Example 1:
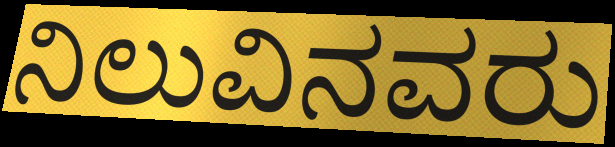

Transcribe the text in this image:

ನಿಲುವಿನವರು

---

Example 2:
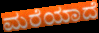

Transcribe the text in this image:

ಮರೆಯಾದೆ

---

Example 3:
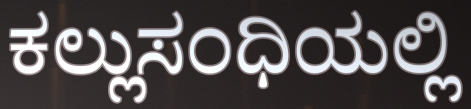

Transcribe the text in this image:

ಕಲ್ಲುಸಂಧಿಯಲ್ಲಿ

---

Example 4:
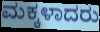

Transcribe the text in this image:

ಮಕ್ಕಳಾದರು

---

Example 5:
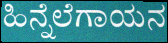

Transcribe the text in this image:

ಹಿನ್ನೆಲೆಗಾಯನ